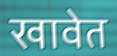
खावेत